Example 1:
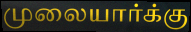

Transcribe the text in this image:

முலையார்க்கு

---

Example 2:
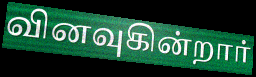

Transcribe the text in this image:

வினவுகின்றார்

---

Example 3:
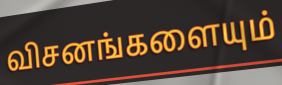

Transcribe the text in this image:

விசனங்களையும்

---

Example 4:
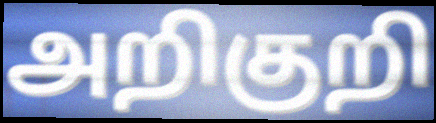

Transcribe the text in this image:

அறிகுறி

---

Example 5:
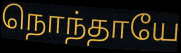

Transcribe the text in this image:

நொந்தாயே